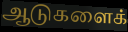
ஆடுகளைக்